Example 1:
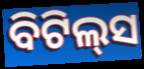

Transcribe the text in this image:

ବିଟିଲ୍‌ସ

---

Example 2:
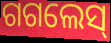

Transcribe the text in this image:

ଗଗଲେସ୍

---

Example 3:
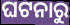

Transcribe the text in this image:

ଘଟନାରୁ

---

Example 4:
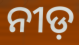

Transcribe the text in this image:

ନୀଡ଼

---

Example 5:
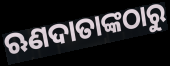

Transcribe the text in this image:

ଋଣଦାତାଙ୍କଠାରୁ